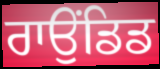
ਰਾਉਂਡਿਡ